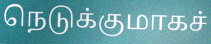
நெடுக்குமாகச்